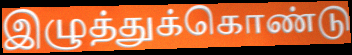
இழுத்துக்கொண்டு